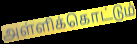
அள்ளிக்கொட்டும்